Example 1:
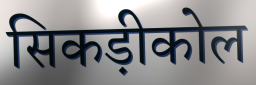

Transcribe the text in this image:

सिकड़ीकोल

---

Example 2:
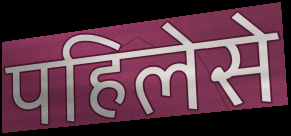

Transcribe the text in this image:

पहिलेसे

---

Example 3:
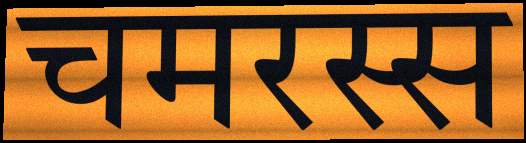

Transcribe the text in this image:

चमरस्स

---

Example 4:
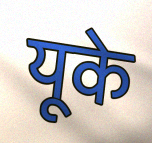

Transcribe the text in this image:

यूके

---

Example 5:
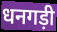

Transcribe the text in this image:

धनगड़ी